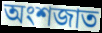
অংশজাত